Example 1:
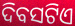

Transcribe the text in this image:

ଦିବସଟିଏ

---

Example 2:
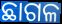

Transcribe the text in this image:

ଛାଗଳ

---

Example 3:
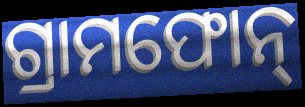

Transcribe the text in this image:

ଗ୍ରାମଫୋନ୍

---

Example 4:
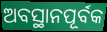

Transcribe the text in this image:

ଅବସ୍ଥାନପୂର୍ବକ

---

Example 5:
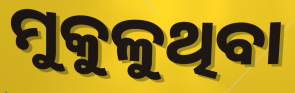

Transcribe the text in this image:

ମୁକୁଳୁଥିବା